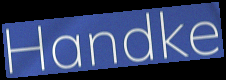
Handke